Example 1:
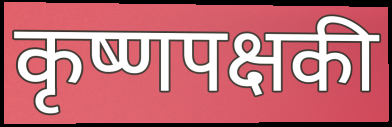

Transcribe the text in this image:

कृष्णपक्षकी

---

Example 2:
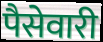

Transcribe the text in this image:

पैसेवारी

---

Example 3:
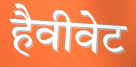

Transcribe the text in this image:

हैवीवेट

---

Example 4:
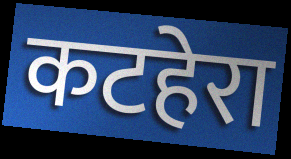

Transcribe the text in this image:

कटहेरा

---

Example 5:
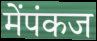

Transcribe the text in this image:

मेंपंकज